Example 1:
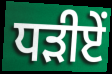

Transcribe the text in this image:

ਧੜੀਏਂ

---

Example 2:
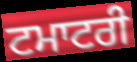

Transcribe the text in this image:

ਟਮਾਟਰੀ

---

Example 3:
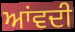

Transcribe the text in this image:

ਆਂਵਦੀ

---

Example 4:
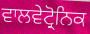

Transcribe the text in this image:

ਵਾਲਵੇਟ੍ਰੋਨਿਕ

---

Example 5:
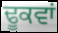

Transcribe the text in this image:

ਢੂਕਵਾਂ